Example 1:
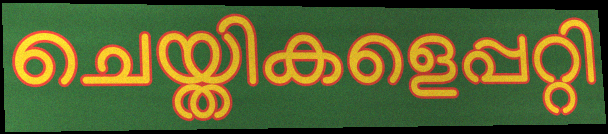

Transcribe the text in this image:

ചെയ്തികളെപ്പറ്റി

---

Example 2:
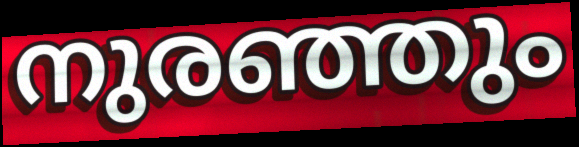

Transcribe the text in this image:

നുരഞ്ഞും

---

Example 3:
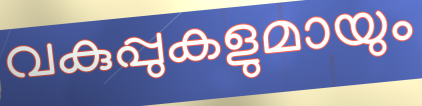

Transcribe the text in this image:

വകുപ്പുകളുമായും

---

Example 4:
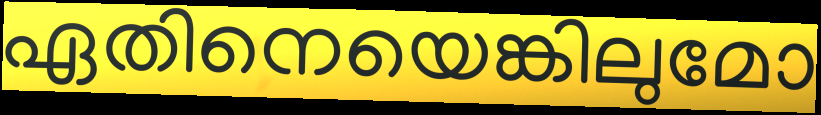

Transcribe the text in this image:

ഏതിനെയെങ്കിലുമോ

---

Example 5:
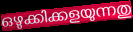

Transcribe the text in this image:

ഒഴുക്കിക്കളയുന്നതു